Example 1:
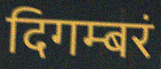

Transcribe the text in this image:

दिगम्बरं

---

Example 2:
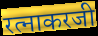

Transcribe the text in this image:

रत्नाकरजी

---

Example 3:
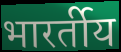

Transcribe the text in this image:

भारर्तीय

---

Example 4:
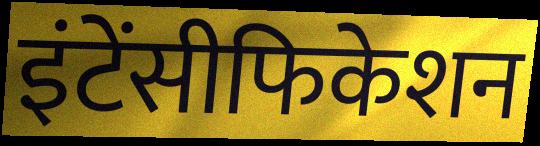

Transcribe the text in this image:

इंटेंसीफिकेशन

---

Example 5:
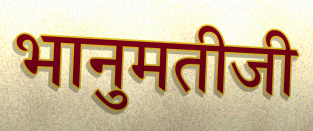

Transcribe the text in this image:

भानुमतीजी